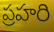
ప్రహరి